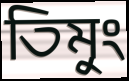
তিমুং